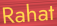
Rahat